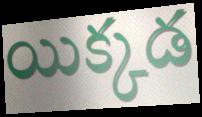
యిక్కడ